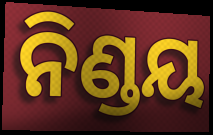
ନିଣ୍ଡୟ